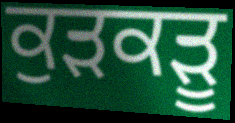
ਕੁੜਕੜੂ